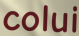
colui